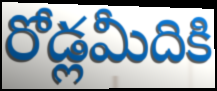
రోడ్లమీదికి